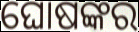
ଘୋଷଙ୍କର